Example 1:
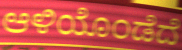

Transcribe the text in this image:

ಆಳಿಯೊಂಡೆದೆ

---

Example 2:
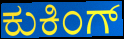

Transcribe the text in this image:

ಕುಕಿಂಗ್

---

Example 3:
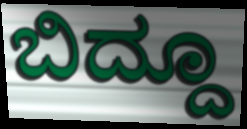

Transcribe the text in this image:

ಬಿದ್ದೂ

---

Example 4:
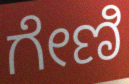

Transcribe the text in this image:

ಗೇಣಿ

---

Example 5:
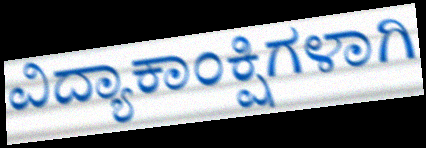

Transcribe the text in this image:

ವಿದ್ಯಾಕಾಂಕ್ಷಿಗಳಾಗಿ